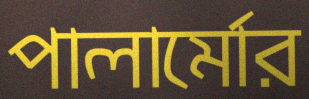
পালার্মোর